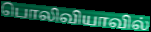
பொலிவியாவில்